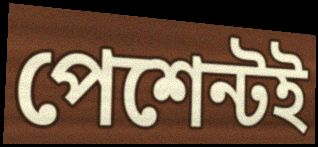
পেশেন্টই